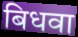
बिधवा